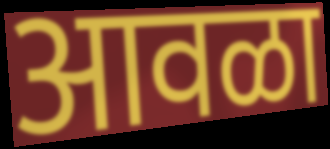
आवळा